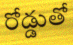
రోడ్డుతో